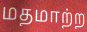
மதமாற்ற